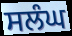
ਸਲੰਘ